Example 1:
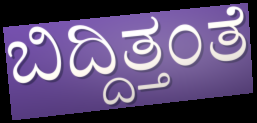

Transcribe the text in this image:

ಬಿದ್ದಿತ್ತಂತೆ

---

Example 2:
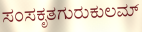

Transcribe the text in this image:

ಸಂಸಕೃತಗುರುಕುಲಮ್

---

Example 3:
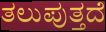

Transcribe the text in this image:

ತಲುಪುತ್ತದೆ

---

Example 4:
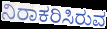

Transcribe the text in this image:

ನಿರಾಕರಿಸಿರುವ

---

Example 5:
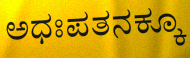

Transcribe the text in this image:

ಅಧಃಪತನಕ್ಕೂ